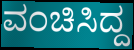
ವಂಚಿಸಿದ್ದ